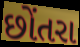
છોંતરા